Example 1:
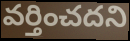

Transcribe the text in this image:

వర్తించదని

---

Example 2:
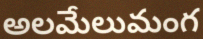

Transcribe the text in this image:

అలమేలుమంగ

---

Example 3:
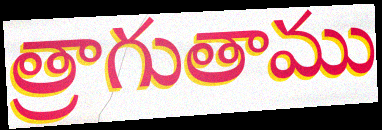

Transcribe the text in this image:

త్రాగుతాము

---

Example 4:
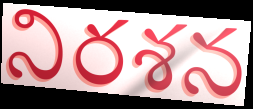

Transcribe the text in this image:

నిరశన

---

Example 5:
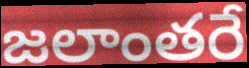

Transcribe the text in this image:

జలాంతరే